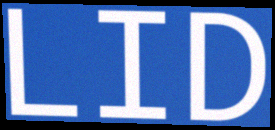
LID